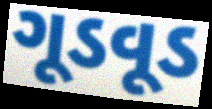
ગૂડવૂડ